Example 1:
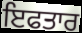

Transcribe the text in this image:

ਇਫਤਾਰ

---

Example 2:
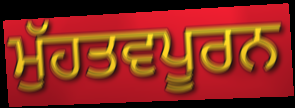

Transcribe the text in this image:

ਮੁੱਹਤਵਪੂਰਨ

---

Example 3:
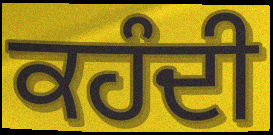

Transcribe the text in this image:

ਕਹੰਦੀ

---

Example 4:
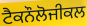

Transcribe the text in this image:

ਟੈਕਨੌਲੋਜੀਕਲ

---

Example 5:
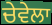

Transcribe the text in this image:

ਚੇਵੇਲਾ